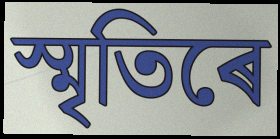
স্মৃতিৰে